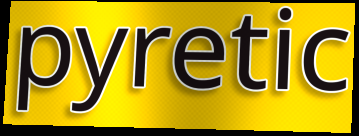
pyretic